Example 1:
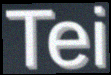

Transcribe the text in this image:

Tei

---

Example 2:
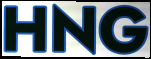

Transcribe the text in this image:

HNG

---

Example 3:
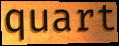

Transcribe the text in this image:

quart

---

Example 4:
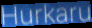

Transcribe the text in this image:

Hurkaru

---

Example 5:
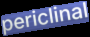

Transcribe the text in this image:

periclinal